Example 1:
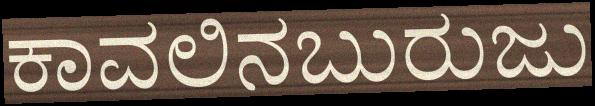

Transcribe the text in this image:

ಕಾವಲಿನಬುರುಜು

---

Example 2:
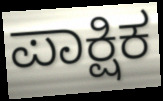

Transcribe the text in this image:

ಪಾಕ್ಷಿಕ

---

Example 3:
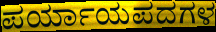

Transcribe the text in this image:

ಪರ್ಯಾಯಪದಗಳ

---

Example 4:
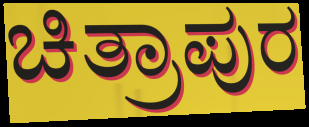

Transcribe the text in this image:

ಚಿತ್ರಾಪುರ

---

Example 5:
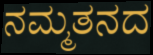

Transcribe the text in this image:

ನಮ್ಮತನದ